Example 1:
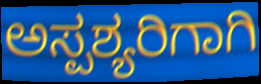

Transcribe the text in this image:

ಅಸ್ಪಶ್ಯರಿಗಾಗಿ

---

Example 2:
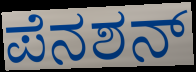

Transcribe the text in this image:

ಪೆನಶನ್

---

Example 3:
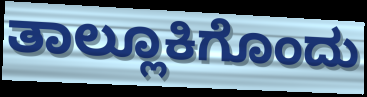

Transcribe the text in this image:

ತಾಲ್ಲೂಕಿಗೊಂದು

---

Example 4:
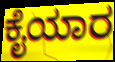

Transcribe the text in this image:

ಕೈಯಾರ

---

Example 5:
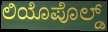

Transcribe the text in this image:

ಲಿಯೊಪೊಲ್ಡ್